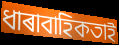
ধাৰাবাহিকতাই